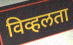
विव्हलता